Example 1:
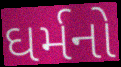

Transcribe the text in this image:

ઘર્મનો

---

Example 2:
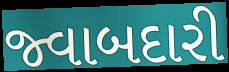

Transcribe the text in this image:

જ્વાબદારી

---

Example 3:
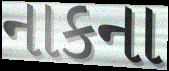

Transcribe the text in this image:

નાકના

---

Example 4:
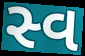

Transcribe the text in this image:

સ્વ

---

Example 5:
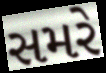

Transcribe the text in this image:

સમરે